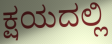
ಕ್ಷಯದಲ್ಲಿ